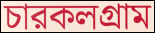
চারকলগ্রাম